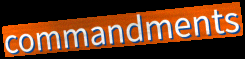
commandments